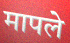
मापले